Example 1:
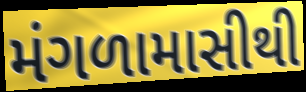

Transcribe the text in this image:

મંગળામાસીથી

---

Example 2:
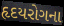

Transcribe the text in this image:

હૃદયરોગના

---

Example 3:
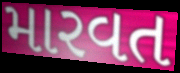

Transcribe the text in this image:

મારવત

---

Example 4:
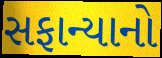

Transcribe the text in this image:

સફાન્યાનો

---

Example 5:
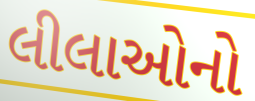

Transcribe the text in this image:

લીલાઓનો